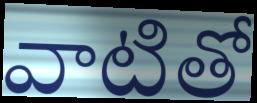
వాటితో